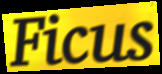
Ficus